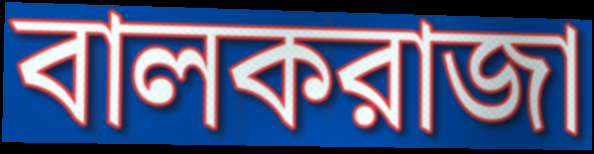
বালকরাজা